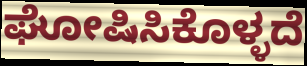
ಘೋಷಿಸಿಕೊಳ್ಳದೆ